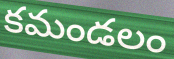
కమండలం